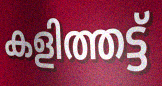
കളിത്തട്ട്